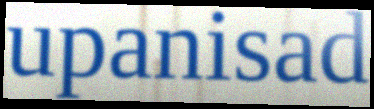
upanisad